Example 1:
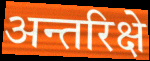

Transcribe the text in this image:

अन्तरिक्षे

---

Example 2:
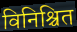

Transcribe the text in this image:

विनिश्चित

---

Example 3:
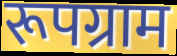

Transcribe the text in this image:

रूपग्राम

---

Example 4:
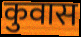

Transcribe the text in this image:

कुवास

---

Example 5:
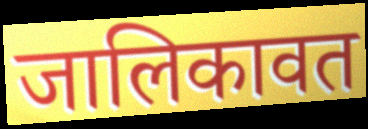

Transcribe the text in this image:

जालिकावत